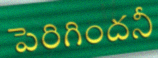
పెరిగిందనీ